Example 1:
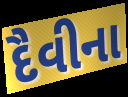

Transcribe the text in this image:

દૈવીના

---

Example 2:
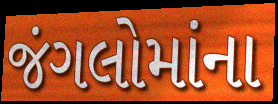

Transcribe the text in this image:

જંગલોમાંના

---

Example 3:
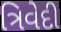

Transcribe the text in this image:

ત્રિવેદી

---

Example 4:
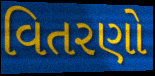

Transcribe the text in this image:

વિતરણો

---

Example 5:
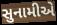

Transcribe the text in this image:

સુનામીએ